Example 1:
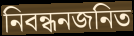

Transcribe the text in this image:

নিবন্ধনজনিত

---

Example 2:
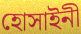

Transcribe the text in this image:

হোসাইনী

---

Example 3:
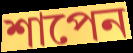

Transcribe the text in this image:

শাপেন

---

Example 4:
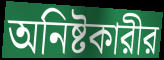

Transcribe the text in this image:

অনিষ্টকারীর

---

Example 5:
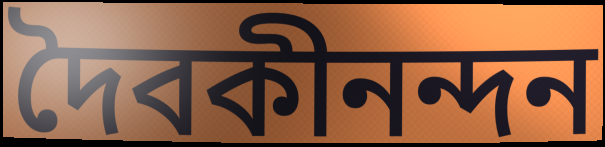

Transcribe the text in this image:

দৈবকীনন্দন